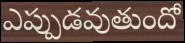
ఎప్పుడవుతుందో